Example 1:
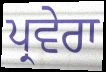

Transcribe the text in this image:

ਪ੍ਰਵੇਰਾ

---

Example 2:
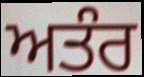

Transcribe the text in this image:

ਅਤੰਰ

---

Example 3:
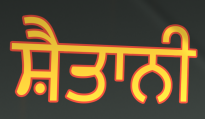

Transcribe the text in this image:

ਸ਼ੈਤਾਨੀ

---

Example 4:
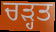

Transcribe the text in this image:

ਚੜ੍ਹਤ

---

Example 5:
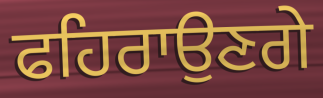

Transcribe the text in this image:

ਫਹਿਰਾਉਣਗੇ